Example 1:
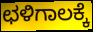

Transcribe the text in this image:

ಛಳಿಗಾಲಕ್ಕೆ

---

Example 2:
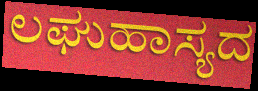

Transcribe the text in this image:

ಲಘುಹಾಸ್ಯದ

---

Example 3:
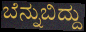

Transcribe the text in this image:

ಬೆನ್ನುಬಿದ್ದು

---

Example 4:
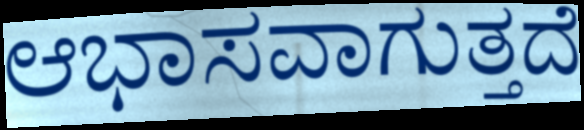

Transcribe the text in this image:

ಆಭಾಸವಾಗುತ್ತದೆ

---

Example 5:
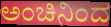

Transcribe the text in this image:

ಅಂಚಿನಿಂದ